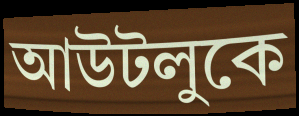
আউটলুকে